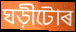
ঘড়ীটোৰ